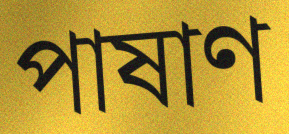
পাষাণ